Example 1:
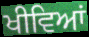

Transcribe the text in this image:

ਖੀਵਿਆਂ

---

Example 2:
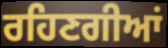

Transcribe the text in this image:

ਰਹਿਣਗੀਆਂ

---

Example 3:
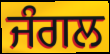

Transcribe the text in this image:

ਜੰਗਲ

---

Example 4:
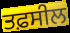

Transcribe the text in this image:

ਤਫ਼ਸੀਲ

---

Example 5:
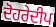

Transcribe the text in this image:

ਦੋਹਰੇਦੀਪ